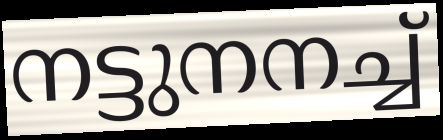
നട്ടുനനച്ച്